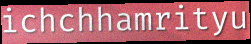
ichchhamrityu